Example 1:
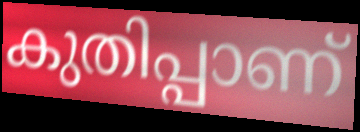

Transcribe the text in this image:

കുതിപ്പാണ്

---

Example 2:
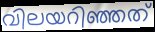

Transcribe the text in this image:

വിലയറിഞ്ഞത്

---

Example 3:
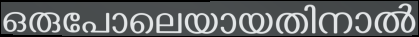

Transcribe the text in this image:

ഒരുപോലെയായതിനാൽ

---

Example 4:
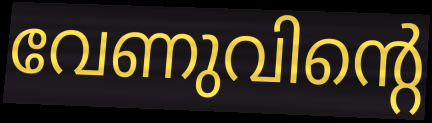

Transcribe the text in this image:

വേണുവിന്റെ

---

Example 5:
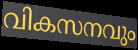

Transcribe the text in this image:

വികസനവും